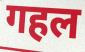
गहल